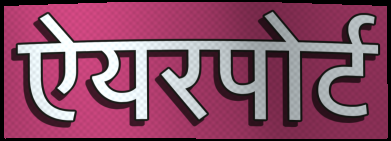
ऐयरपोर्ट